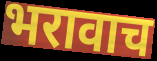
भरावाच